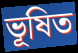
ভূষিত